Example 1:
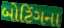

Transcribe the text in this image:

બોટિંગના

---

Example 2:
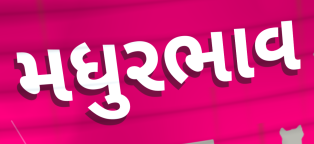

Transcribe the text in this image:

મધુરભાવ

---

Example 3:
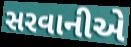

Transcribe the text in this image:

સરવાનીએ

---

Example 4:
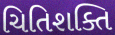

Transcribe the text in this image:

ચિતિશક્તિ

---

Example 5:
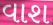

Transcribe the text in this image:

વાશ